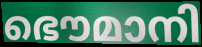
ഭൌമാനി